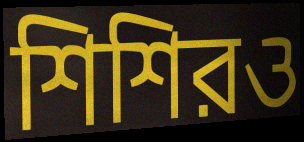
শিশিরও